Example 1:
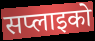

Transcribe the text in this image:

सप्लाइको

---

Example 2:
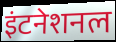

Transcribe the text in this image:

इंटनेशनल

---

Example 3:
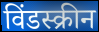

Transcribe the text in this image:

विंडस्क्रीन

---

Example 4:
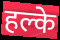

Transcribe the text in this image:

हल्‍के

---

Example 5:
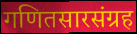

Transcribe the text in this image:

गणितसारसंग्रह